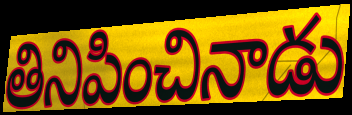
తినిపించినాడు